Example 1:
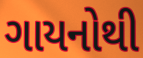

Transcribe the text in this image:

ગાયનોથી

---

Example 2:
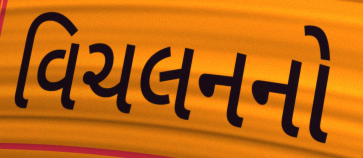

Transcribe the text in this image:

વિચલનનો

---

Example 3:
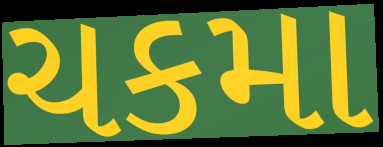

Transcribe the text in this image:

ચકમા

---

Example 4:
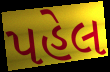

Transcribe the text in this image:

પહેલ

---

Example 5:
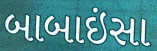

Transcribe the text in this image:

બાબાઇંસા